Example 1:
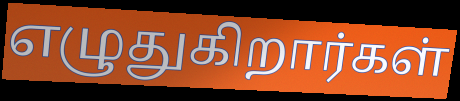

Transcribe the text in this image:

எழுதுகிறார்கள்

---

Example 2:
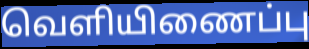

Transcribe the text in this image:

வெளியிணைப்பு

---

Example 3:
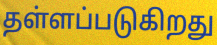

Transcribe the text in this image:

தள்ளப்படுகிறது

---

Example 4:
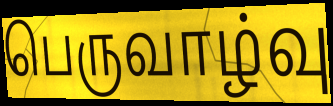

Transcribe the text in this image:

பெருவாழ்வு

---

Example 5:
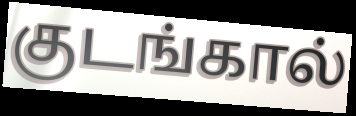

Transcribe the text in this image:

குடங்கால்